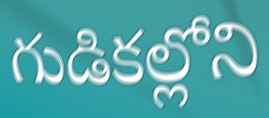
గుడికల్లోని